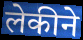
लेकीने